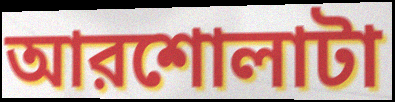
আরশোলাটা